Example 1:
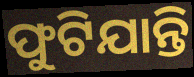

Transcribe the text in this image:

ଫୁଟିଯାନ୍ତି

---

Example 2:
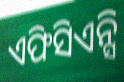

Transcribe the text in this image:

ଏଫିସିଏନ୍ସି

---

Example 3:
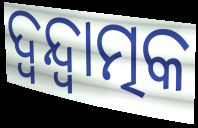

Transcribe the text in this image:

ଦ୍ଵନ୍ଦ୍ଵାତ୍ମକ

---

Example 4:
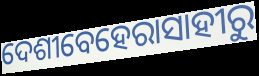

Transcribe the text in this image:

ଦେଶୀବେହେରାସାହୀରୁ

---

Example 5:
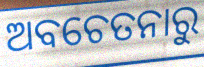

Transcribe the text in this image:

ଅବଚେତନାରୁ